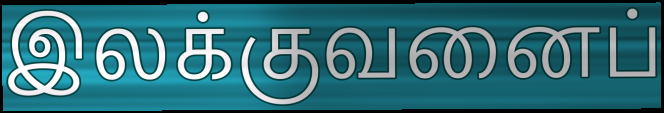
இலக்குவனைப்